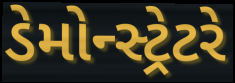
ડેમોન્સ્ટ્રેટરે